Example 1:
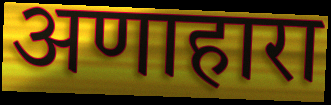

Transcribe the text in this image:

अणाहारा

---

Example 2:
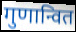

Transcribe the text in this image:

गुणान्वित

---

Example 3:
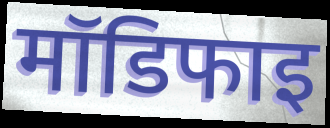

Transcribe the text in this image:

मॉडिफाइ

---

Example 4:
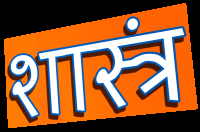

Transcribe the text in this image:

शास्त्रं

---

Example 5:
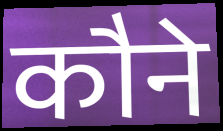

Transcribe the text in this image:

कौने